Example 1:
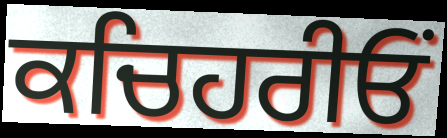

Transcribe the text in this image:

ਕਚਿਹਰੀਓਂ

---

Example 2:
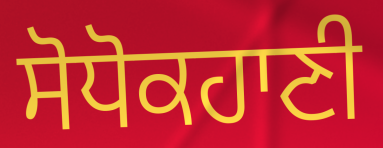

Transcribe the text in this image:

ਸੋਧੋਕਹਾਣੀ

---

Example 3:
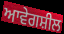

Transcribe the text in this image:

ਆਵੇਗਸ਼ੀਲ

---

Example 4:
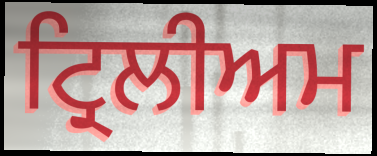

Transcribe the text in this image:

ਟ੍ਰਿਲੀਅਮ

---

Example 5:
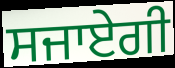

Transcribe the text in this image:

ਸਜਾਏਗੀ